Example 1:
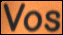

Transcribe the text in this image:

Vos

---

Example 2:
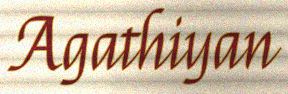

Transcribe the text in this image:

Agathiyan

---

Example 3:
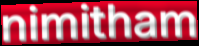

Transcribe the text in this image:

nimitham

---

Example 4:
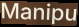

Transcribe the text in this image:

Manipu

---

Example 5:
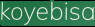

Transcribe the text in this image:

koyebisa